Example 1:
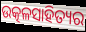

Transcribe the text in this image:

ଉତ୍କଳସାହିତ୍ୟର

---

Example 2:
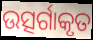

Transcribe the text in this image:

ଉତ୍ସର୍ଗାକୃତ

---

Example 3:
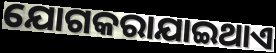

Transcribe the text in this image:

ଯୋଗକରାଯାଇଥାଏ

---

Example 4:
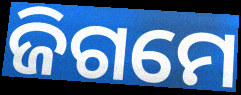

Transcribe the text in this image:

ଜିଗମେ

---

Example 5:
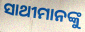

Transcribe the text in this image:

ସାଥୀମାନଙ୍କୁ